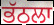
ਭੱਠਲਾ